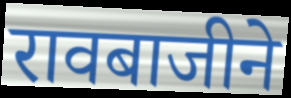
रावबाजीने